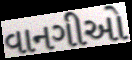
વાનગીઓ